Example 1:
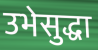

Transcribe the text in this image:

उभेसुद्धा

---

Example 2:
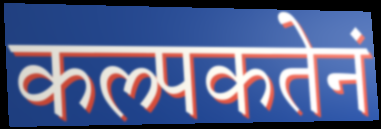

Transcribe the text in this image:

कल्पकतेनं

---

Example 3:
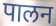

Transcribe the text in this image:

पालन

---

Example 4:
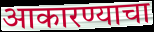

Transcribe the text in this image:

आकारण्याचा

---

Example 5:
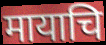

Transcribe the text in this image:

मायाचि